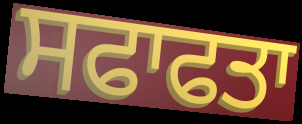
ਸਫਾਫਤਾ